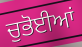
ਚੁਭੋਈਆਂ